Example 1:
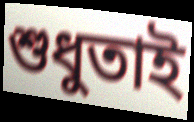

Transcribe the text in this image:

শুধুতাই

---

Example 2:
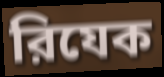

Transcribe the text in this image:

রিযেক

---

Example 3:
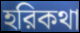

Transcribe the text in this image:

হরিকথা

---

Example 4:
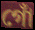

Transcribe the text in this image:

গোঁ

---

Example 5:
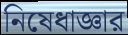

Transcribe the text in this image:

নিষেধাজ্ঞার